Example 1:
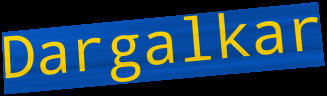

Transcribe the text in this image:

Dargalkar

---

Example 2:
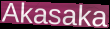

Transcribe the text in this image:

Akasaka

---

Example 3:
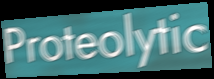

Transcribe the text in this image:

Proteolytic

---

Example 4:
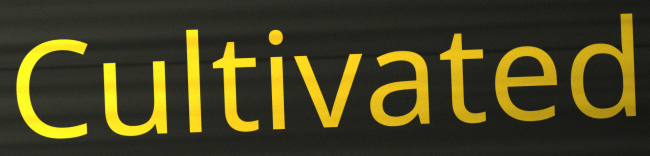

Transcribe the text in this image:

Cultivated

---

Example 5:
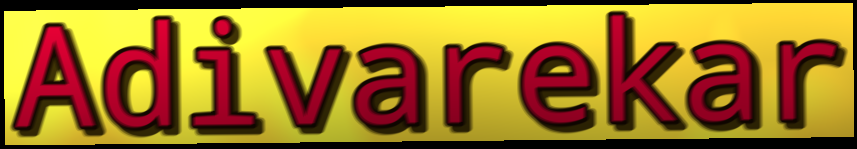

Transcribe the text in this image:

Adivarekar